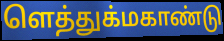
ளெத்துக்மகாண்டு